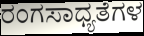
ರಂಗಸಾಧ್ಯತೆಗಳ